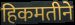
हिकमतीने